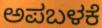
ಅಪಬಳಕೆ